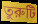
তুরুটি